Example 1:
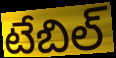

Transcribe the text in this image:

టేబిల్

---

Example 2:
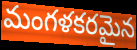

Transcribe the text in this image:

మంగళకరమైన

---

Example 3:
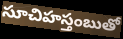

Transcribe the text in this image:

సూచిహస్తంబుతో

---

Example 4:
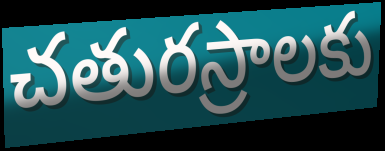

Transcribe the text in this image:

చతురస్రాలకు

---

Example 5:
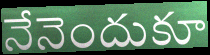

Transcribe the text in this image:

నేనెందుకూ